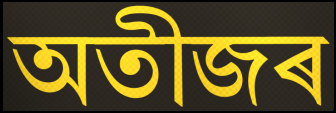
অতীজৰ